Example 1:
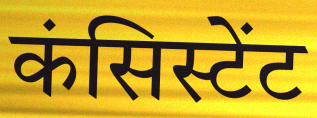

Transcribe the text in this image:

कंसिस्टेंट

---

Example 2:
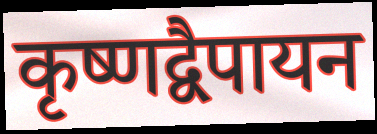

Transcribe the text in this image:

कृष्णद्वैपायन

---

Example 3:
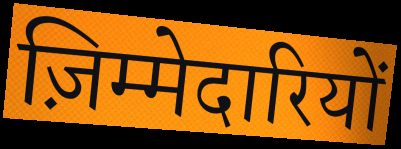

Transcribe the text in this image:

ज़िम्मेदारियों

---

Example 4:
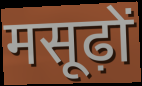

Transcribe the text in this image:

मसूढ़ों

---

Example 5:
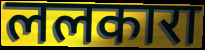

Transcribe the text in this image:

ललकारा